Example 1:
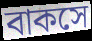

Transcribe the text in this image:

বাকসে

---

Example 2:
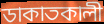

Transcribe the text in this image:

ডাকাতকালী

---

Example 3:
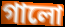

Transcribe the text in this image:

গালো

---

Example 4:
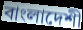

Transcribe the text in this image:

বাংলাদেশী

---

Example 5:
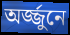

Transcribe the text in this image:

অর্জ্জুনে